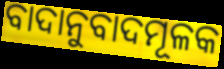
ବାଦାନୁବାଦମୂଳକ